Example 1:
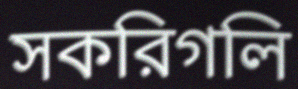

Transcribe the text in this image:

সকরিগলি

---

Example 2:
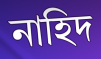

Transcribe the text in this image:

নাহিদ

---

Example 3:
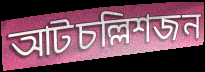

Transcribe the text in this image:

আটচল্লিশজন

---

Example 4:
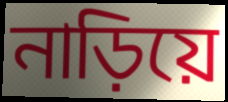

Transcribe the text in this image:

নাড়িয়ে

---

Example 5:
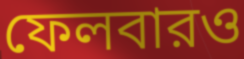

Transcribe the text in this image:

ফেলবারও